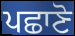
ਪਛਾਣੋ